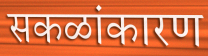
सकळांकारण